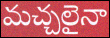
మచ్చలైనా